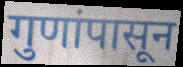
गुणांपासून